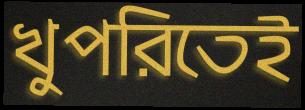
খুপরিতেই